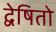
द्वेषितो